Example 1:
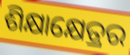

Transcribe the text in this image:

ଶିକ୍ଷାକ୍ଷେତ୍ରର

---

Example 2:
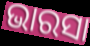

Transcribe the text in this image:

ଭାରସା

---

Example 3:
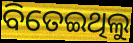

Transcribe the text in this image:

ବିତେଇଥିଲୁ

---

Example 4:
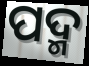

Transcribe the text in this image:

ପଦ୍ମ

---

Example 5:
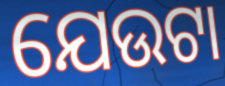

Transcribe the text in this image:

ଯେଉଟା